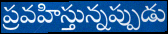
ప్రవహిస్తున్నప్పుడు